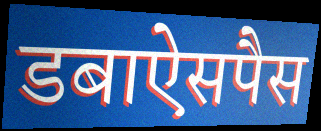
डबाऐसपैस